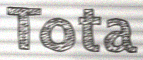
Tota